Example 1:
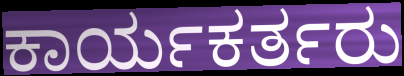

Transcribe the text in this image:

ಕಾರ್ಯಕರ್ತರು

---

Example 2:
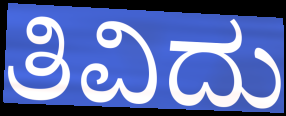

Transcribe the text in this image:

ತಿವಿದು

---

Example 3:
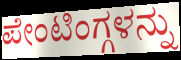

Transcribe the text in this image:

ಪೇಂಟಿಂಗ್ಗಳನ್ನು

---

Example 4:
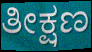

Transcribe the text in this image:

ತೀಕ್ಷಣ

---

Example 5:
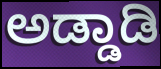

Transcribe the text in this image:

ಅಡ್ಡಾಡಿ